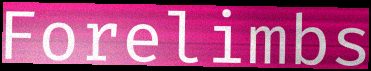
Forelimbs